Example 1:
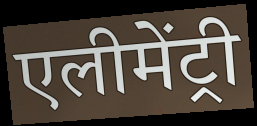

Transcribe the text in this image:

एलीमेंट्री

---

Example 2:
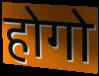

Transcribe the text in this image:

होगो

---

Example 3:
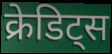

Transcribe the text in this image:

क्रेडिट्स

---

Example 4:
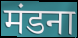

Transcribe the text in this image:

मंडना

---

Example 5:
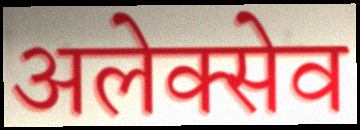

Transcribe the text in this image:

अलेक्सेव